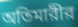
অতিমারীর